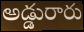
అడ్డురారు